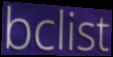
bclist